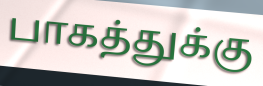
பாகத்துக்கு